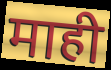
माही